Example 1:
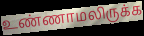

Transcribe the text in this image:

உண்ணாமலிருக்க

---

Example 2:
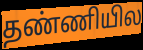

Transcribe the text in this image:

தண்ணியில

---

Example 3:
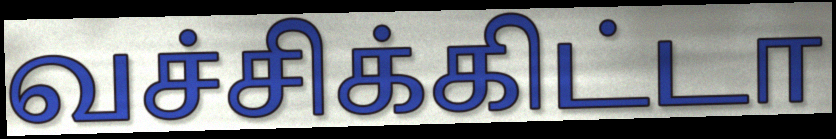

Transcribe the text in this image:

வச்சிக்கிட்டா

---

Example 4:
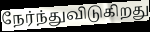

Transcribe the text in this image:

நேர்ந்துவிடுகிறது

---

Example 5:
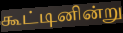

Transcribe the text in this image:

கூட்டினின்று